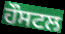
ਹੌਸਟਲ